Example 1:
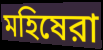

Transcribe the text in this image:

মহিষেরা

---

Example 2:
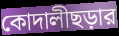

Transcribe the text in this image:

কোদালীছড়ার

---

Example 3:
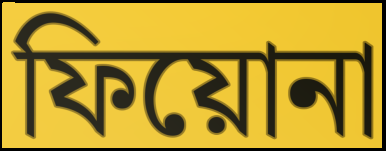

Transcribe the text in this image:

ফিয়োনা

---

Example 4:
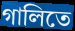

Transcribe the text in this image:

গালিতে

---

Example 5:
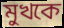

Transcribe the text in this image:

মুখকে